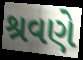
શ્રવણે